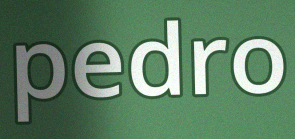
pedro